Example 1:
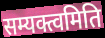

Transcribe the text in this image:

सम्यक्त्वमिति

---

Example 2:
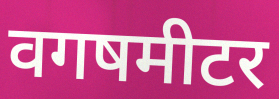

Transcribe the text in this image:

वगषमीटर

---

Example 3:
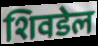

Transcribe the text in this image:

शिवडेल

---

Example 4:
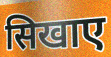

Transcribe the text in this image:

सिखाए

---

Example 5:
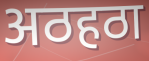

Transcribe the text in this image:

अठहठा